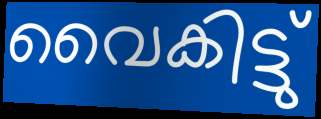
വൈകിട്ടു്